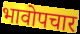
भावोपचार